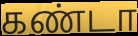
கண்டா